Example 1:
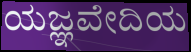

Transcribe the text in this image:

ಯಜ್ಞವೇದಿಯ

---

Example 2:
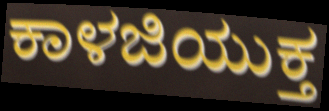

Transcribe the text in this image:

ಕಾಳಜಿಯುಕ್ತ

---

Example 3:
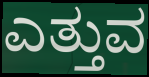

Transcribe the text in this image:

ಎತ್ತುವ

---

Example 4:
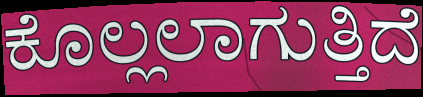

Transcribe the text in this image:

ಕೊಲ್ಲಲಾಗುತ್ತಿದೆ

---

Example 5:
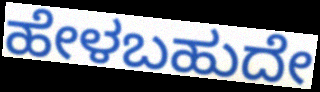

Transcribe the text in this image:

ಹೇಳಬಹುದೇ